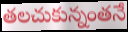
తలచుకున్నంతనే